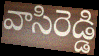
వాసిరెడ్డి